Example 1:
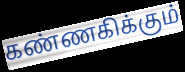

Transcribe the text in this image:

கண்ணகிக்கும்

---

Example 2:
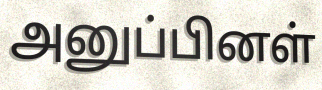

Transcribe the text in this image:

அனுப்பினள்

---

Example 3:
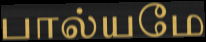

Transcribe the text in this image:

பால்யமே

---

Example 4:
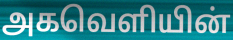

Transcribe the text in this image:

அகவெளியின்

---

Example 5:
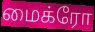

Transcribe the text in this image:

மைக்ரோ